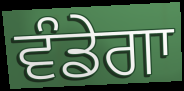
ਵੰਡੇਗਾ